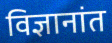
विज्ञानांत